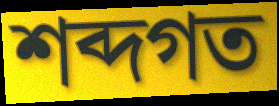
শব্দগত